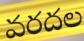
వరదల